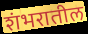
शंभरातील